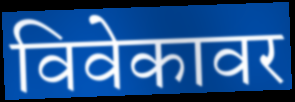
विवेकावर